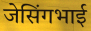
जेसिंगभाई